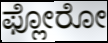
ಫ್ಲೋರೋ